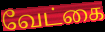
வேட்கை